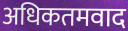
अधिकतमवाद